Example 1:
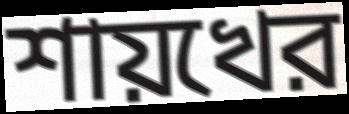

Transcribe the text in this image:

শায়খের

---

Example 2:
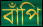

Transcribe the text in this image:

বাঁপি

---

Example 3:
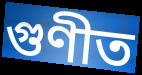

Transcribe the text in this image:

গুণীত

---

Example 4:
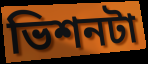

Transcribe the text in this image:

ভিশনটা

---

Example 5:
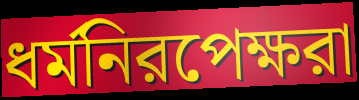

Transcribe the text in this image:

ধর্মনিরপেক্ষরা